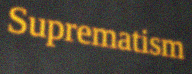
Suprematism